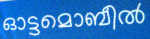
ഓട്ടമൊബീൽ